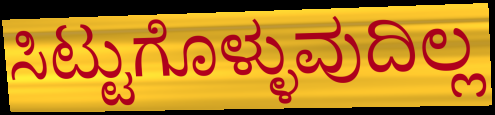
ಸಿಟ್ಟುಗೊಳ್ಳುವುದಿಲ್ಲ